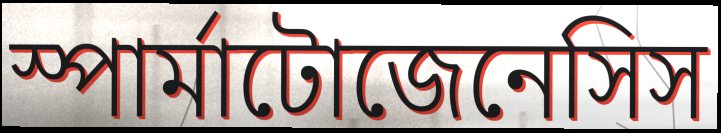
স্পার্মাটোজেনেসিস